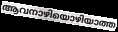
ആവനാഴിയൊഴിയാത്ത